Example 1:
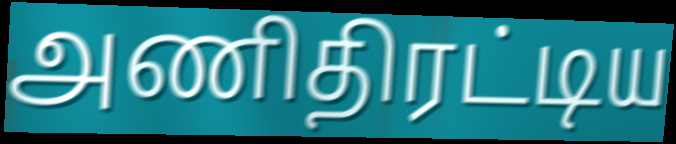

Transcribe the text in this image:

அணிதிரட்டிய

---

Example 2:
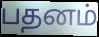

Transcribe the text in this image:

பதனம்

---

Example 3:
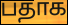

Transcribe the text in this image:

பதாக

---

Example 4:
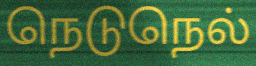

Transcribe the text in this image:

நெடுநெல்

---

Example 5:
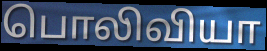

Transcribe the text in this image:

பொலிவியா